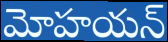
మోహయన్